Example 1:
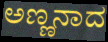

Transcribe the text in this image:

ಅಣ್ಣನಾದ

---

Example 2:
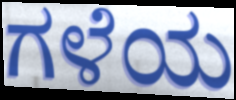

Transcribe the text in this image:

ಗಳೆಯ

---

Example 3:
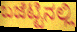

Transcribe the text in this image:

ಬಜೆಟ್ಟಿನಲ್ಲಿ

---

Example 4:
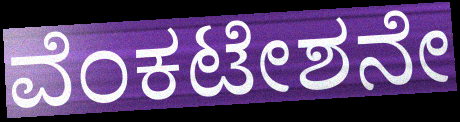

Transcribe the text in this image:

ವೆಂಕಟೇಶನೇ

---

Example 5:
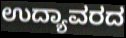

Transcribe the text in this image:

ಉದ್ಯಾವರದ